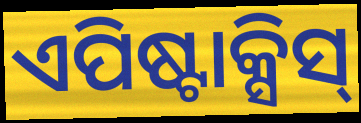
ଏପିଷ୍ଟାକ୍ସିସ୍